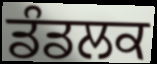
ਡੰਡਲਕ